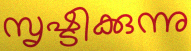
സൃഷ്ടിക്കുന്നു